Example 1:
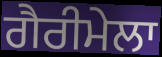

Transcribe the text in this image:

ਗੈਰੀਮੇਲਾ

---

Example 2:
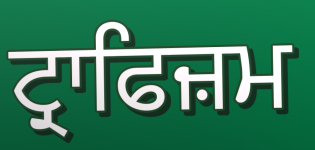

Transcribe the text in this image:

ਟ੍ਰਾਫਿਜ਼ਮ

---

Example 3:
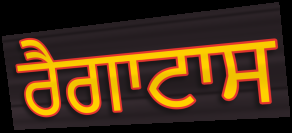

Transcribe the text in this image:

ਰੈਗਾਟਾਸ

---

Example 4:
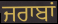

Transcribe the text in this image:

ਜਰਾਬਾਂ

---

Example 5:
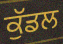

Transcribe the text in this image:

ਕੁੱਡਲ